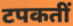
टपकतीं